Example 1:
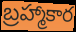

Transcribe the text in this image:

బ్రహ్మాకార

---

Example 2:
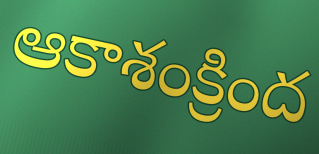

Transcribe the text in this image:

ఆకాశంక్రింద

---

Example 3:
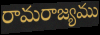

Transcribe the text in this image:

రామరాజ్యము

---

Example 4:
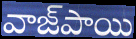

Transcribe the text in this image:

వాజ్‌పాయి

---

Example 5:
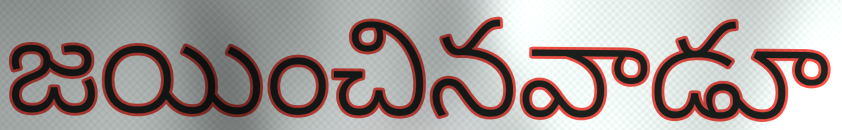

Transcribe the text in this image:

జయించినవాడూ